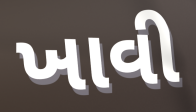
ખાવી